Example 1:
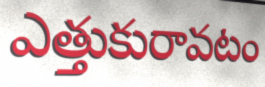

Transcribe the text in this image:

ఎత్తుకురావటం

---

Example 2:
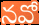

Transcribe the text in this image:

నవో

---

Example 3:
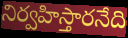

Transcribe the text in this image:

నిర్వహిస్తారనేది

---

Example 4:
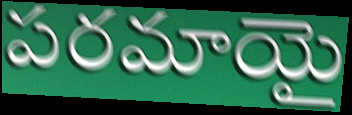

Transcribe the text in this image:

పరమాయై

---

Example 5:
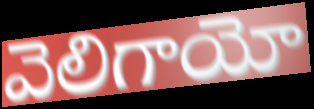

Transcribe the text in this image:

వెలిగాయో